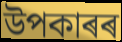
উপকাৰৰ